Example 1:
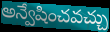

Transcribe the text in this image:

అన్వేషించవచ్చు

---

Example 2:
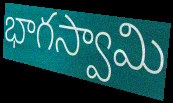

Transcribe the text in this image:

భాగస్వామి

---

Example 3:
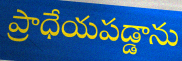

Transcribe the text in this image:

ప్రాధేయపడ్డాను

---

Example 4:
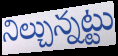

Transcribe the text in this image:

నిల్చున్నట్టు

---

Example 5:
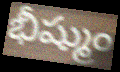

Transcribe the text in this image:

భీష్ముం